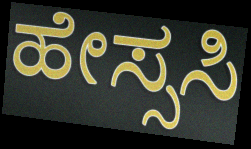
ಹೇಸ್ಸಸಿ